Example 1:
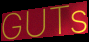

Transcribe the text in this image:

GUTs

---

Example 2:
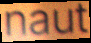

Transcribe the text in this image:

naut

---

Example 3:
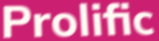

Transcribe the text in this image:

Prolific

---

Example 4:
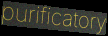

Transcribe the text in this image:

purificatory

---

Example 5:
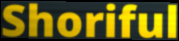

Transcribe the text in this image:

Shoriful